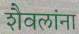
शैवलांना